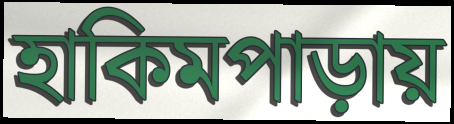
হাকিমপাড়ায়